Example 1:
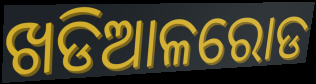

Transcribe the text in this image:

ଖଡିଆଳରୋଡ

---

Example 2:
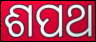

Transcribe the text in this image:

ଶପଥ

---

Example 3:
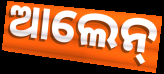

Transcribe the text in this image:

ଆଲେନ୍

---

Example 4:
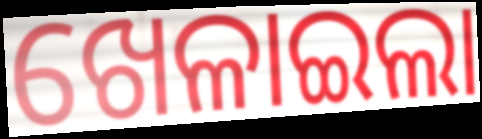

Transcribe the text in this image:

ଖେଳାଇଲା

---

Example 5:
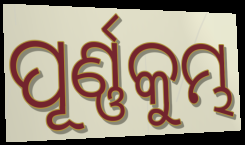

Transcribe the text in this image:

ପୂର୍ଣ୍ଣକୁମ୍ଭ